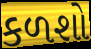
કળશો